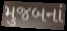
મુજબનાં